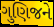
ગુણિજને